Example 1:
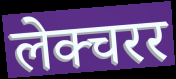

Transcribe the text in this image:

लेक्चरर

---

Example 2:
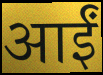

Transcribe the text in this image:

आईं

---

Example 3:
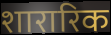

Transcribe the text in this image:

शारारिक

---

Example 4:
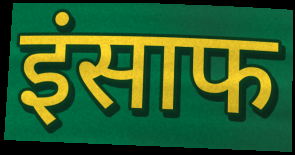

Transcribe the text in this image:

इंसाफ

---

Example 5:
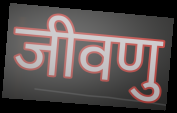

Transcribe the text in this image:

जीवणु